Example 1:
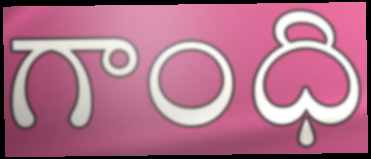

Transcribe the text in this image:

గాంధి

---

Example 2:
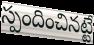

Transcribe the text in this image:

స్పందించినట్టే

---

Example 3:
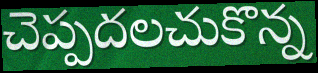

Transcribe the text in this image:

చెప్పదలచుకొన్న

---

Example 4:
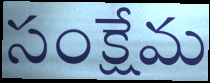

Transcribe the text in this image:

సంక్షేమ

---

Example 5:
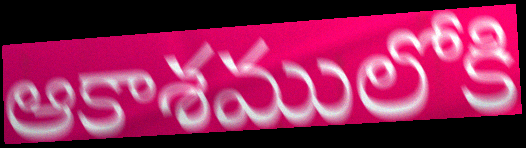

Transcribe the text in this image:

ఆకాశములోకి